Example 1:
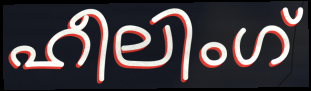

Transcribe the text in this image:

ഹീലിംഗ്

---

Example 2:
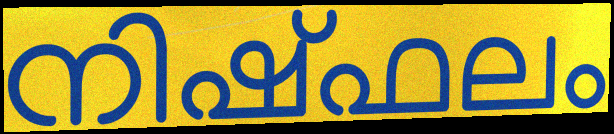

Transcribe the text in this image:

നിഷ്ഫലം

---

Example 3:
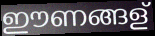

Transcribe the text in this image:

ഈണങ്ങള്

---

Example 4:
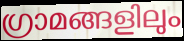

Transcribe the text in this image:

ഗ്രാമങ്ങളിലും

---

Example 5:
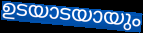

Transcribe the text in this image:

ഉടയാടയായും